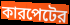
কারপেটের